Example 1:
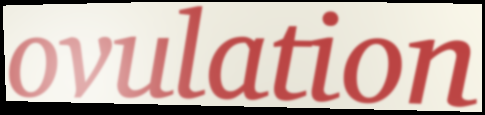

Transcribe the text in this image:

ovulation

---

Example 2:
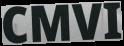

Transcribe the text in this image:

CMVI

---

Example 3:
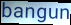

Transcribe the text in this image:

bangun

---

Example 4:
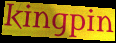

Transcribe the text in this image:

kingpin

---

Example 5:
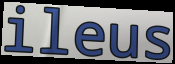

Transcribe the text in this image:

ileus